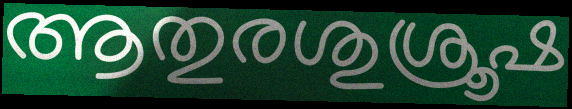
ആതുരശുശ്രൂഷ